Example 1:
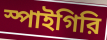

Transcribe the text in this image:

স্পাইগিরি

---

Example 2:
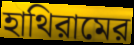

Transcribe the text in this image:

হাথিরামের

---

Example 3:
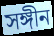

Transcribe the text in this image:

সঙ্গীন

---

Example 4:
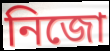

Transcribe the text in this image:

নিজো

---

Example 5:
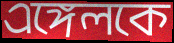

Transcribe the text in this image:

এঙ্গেলকে